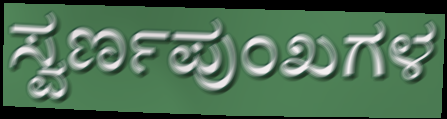
ಸ್ವರ್ಣಪುಂಖಗಳ